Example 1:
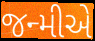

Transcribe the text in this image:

જન્મીએ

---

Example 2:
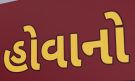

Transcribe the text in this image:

હોવાનો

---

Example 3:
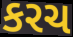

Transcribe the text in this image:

કરચ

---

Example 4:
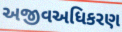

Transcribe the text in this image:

અજીવઅધિકરણ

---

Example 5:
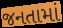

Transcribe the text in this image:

જનતામાં